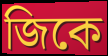
জিকে